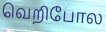
வெறிபோல